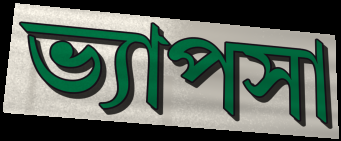
ভ্যাপসা